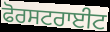
ਫੋਰਸਟਰਾਈਟ